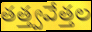
తత్త్వవేత్తల